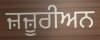
ਜ਼ਜ਼ੂਰੀਅਨ